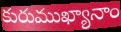
కురుముఖ్యానాం